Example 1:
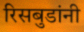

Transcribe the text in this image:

रिसबुडांनी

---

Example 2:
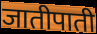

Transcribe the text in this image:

जातीपाती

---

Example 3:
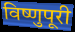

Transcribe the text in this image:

विष्णुपूरी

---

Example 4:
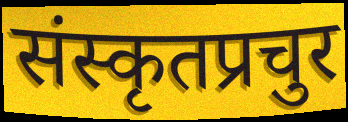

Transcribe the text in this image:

संस्कृतप्रचुर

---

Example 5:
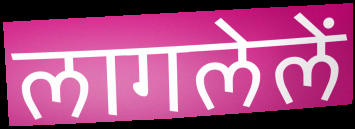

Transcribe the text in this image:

लागलेलें